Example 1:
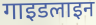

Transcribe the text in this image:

गाइडलाइन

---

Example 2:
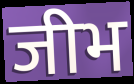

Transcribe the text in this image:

जीभ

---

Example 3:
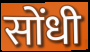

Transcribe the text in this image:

सोंधी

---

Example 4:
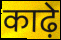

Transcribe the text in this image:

काढ़े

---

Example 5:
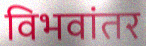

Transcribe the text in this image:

विभवांतर